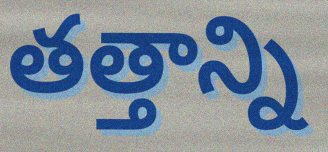
తత్తాన్ని